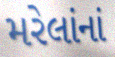
મરેલાંનાં